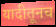
यादीतूनच